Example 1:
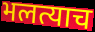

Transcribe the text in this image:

भलत्याच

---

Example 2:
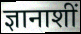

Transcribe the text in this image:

ज्ञानाशीं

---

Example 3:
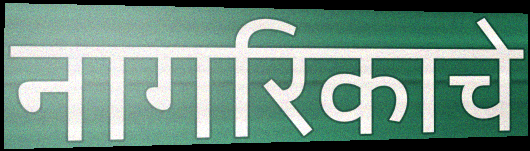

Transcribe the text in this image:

नागरिकाचे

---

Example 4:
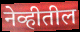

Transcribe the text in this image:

नेव्हीतील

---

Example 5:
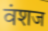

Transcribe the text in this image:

वंशज